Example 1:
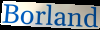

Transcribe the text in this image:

Borland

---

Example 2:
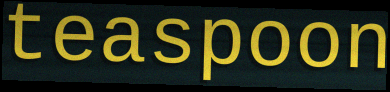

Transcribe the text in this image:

teaspoon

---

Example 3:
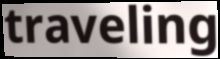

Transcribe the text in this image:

traveling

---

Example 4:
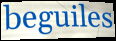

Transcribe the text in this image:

beguiles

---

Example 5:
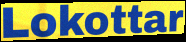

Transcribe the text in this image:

Lokottar